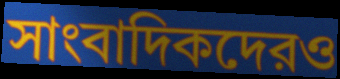
সাংবাদিকদেরও